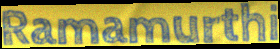
Ramamurthi